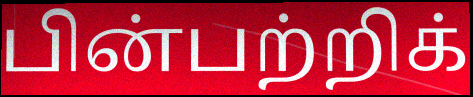
பின்பற்றிக்